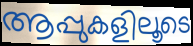
ആപ്പുകളിലൂടെ